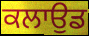
ਕਲਾਉਡ